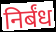
निर्बंध